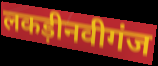
लकड़ीनवीगंज